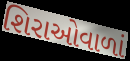
શિરાઓવાળાં